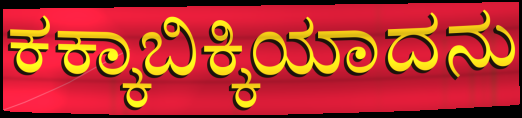
ಕಕ್ಕಾಬಿಕ್ಕಿಯಾದನು